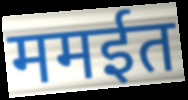
ममईत